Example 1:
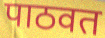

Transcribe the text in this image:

पाठवत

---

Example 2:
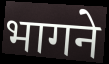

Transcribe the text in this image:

भागने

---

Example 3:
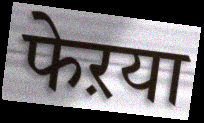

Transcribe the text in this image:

फेऱया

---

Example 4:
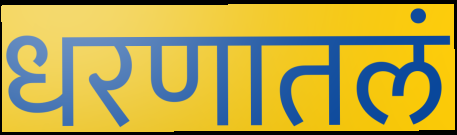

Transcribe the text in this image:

धरणातलं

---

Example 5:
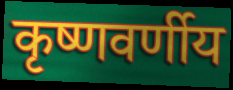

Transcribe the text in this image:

कृष्णवर्णीय